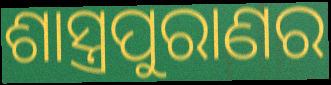
ଶାସ୍ତ୍ରପୁରାଣର